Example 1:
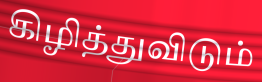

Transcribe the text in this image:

கிழித்துவிடும்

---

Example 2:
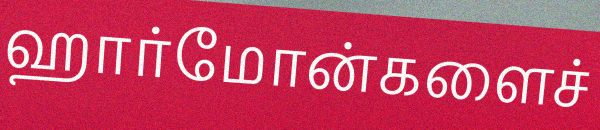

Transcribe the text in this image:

ஹார்மோன்களைச்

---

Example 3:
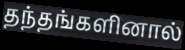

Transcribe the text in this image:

தந்தங்களினால்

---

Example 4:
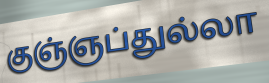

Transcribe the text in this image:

குஞ்ஞப்துல்லா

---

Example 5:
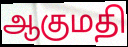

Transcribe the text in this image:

ஆகுமதி